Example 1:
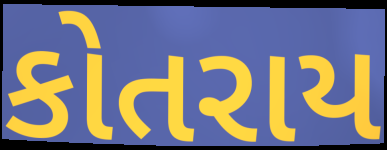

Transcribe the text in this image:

કોતરાય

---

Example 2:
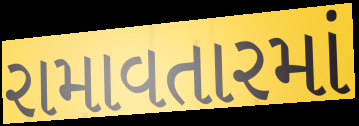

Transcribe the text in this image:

રામાવતારમાં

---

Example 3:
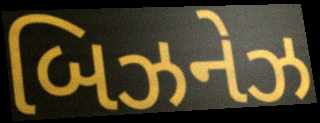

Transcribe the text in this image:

બિઝનેઝ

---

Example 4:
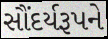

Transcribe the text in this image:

સૌંદર્યરૂપને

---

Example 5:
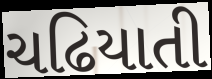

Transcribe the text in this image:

ચઢિયાતી